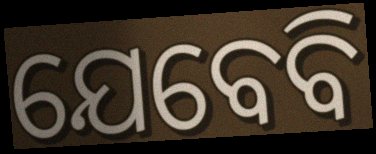
ଯେବେବି